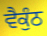
ਵੈਕੁੰਠ